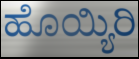
ಹೊಯ್ಯಿರಿ